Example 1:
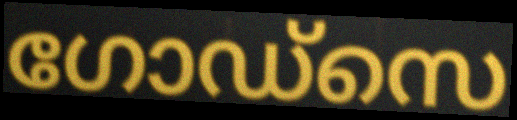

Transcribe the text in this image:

ഗോഡ്സെ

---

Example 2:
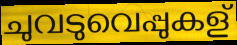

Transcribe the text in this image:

ചുവടുവെപ്പുകള്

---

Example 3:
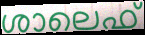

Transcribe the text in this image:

ശാലെഫ്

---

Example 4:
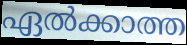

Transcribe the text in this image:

ഏൽക്കാത്ത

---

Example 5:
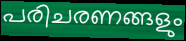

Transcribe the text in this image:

പരിചരണങ്ങളും